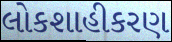
લોકશાહીકરણ